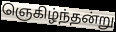
ஞெகிழ்ந்தன்று